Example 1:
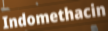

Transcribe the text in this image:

Indomethacin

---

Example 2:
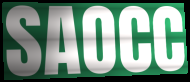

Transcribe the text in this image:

SAOCC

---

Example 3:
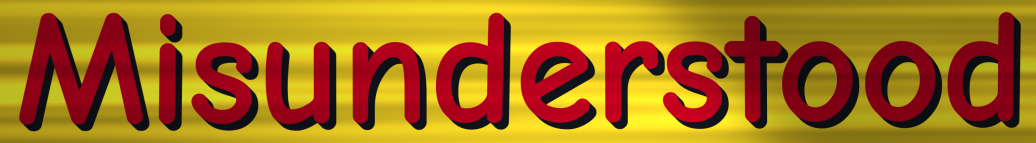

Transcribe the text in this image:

Misunderstood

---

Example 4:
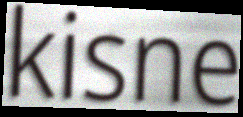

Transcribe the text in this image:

kisne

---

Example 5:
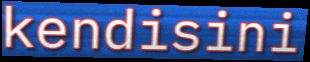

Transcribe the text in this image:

kendisini